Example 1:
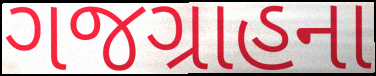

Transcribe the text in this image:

ગજગ્રાહના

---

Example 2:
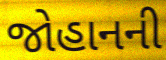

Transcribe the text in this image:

જોહાનની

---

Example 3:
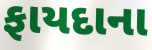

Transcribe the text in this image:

ફાયદાના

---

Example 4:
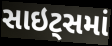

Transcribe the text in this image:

સાઇટ્સમાં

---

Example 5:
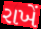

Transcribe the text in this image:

રાખેં